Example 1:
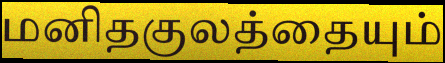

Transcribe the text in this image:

மனிதகுலத்தையும்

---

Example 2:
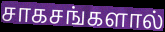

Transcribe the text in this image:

சாகசங்களால்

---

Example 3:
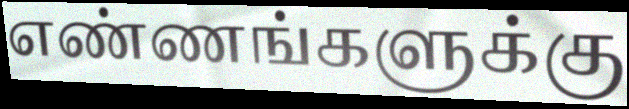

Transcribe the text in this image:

எண்ணங்களுக்கு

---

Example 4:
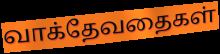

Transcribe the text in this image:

வாக்தேவதைகள்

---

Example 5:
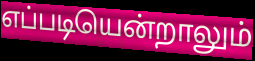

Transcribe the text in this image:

எப்படியென்றாலும்